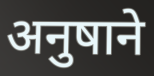
अनुषाने